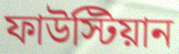
ফাউস্টিয়ান